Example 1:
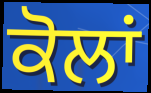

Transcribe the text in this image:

ਕੋਲਾਂ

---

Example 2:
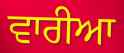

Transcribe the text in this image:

ਵਾਰੀਆ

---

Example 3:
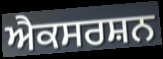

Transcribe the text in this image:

ਐਕਸਰਸ਼ਨ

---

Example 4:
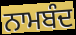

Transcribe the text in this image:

ਨਾਮਬੰਦ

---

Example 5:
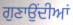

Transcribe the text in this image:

ਗੁਣਾਉਂਦੀਆਂ